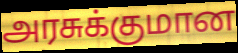
அரசுக்குமான